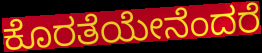
ಕೊರತೆಯೇನೆಂದರೆ